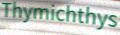
Thymichthys